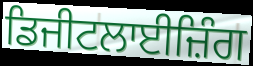
ਡਿਜੀਟਲਾਈਜ਼ਿੰਗ